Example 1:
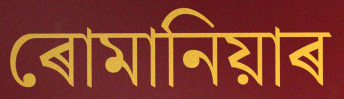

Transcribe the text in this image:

ৰোমানিয়াৰ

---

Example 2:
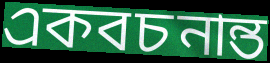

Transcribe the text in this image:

একবচনান্ত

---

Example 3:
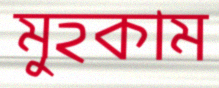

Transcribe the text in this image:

মুহকাম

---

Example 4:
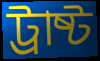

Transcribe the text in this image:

ট্ৰাষ্ট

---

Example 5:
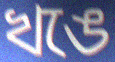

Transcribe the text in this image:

খঙে